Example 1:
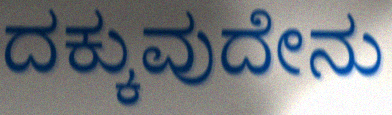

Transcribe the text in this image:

ದಕ್ಕುವುದೇನು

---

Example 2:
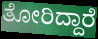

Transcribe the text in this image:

ತೋರಿದ್ದಾರೆ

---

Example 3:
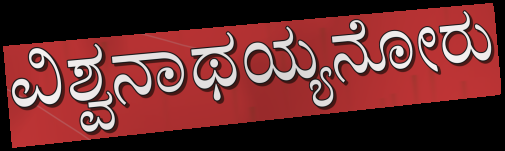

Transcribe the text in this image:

ವಿಶ್ವನಾಥಯ್ಯನೋರು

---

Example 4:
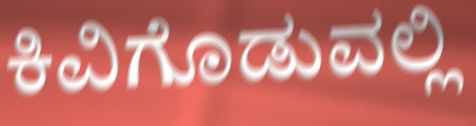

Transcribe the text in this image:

ಕಿವಿಗೊಡುವಲ್ಲಿ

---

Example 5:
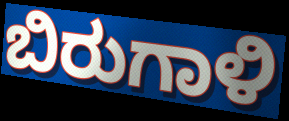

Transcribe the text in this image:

ಬಿರುಗಾಳಿ